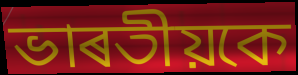
ভাৰতীয়কে